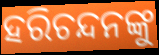
ହରିଚନ୍ଦନଙ୍କୁ